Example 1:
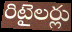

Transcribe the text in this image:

రిటైలర్లు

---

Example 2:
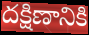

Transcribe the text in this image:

దక్షిణానికి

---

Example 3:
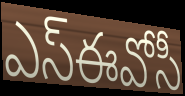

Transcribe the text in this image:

ఎస్ఈవోసీ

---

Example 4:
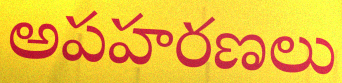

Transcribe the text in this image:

అపహరణలు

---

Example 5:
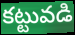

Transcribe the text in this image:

కట్టువడి